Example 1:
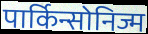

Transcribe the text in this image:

पार्किन्सोनिज्म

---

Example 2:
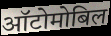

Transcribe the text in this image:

ऑटोमोबिल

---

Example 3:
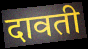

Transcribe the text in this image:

दावती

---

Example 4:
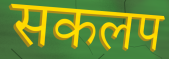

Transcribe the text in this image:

सकलप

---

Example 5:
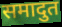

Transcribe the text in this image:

समादुत